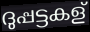
ദുപ്പട്ടകള്